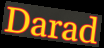
Darad